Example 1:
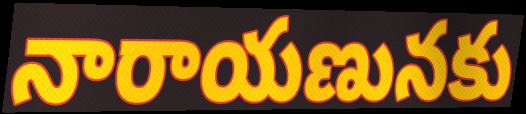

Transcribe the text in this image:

నారాయణునకు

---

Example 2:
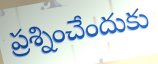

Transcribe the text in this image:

ప్రశ్నించేందుకు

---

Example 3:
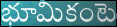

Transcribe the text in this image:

భూమికంటె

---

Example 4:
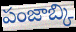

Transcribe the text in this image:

పంజాబ్కి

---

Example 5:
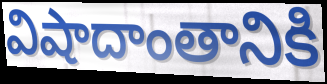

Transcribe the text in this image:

విషాదాంతానికి